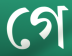
গে